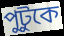
পুটুকে